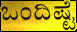
ಒಂದಿಷ್ಟೆ